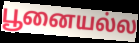
பூனையல்ல